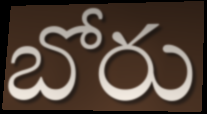
బోరు